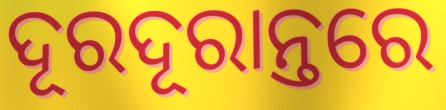
ଦୂରଦୂରାନ୍ତରେ